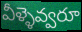
వీళ్ళెవ్వరూ